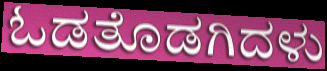
ಓಡತೊಡಗಿದಳು